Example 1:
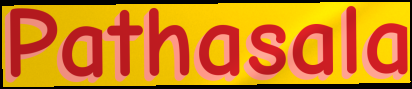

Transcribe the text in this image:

Pathasala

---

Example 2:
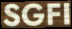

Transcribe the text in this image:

SGFI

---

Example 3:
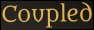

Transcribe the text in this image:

Coupled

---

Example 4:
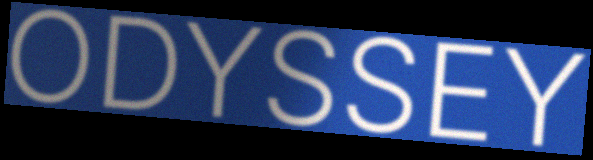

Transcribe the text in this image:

ODYSSEY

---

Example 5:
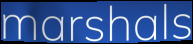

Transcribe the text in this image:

marshals